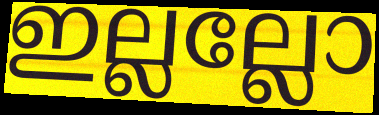
ഇല്ലല്ലോ